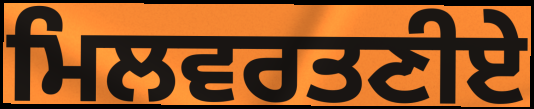
ਮਿਲਵਰਤਣੀਏ